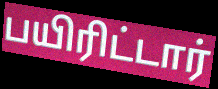
பயிரிட்டார்